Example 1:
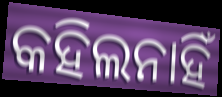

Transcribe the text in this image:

କହିଲନାହିଁ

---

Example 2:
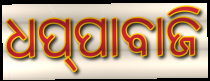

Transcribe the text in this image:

ଧପ୍‌ପାବାଜି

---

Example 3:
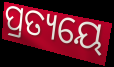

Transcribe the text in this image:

ପ୍ରତ୍ୟୟେ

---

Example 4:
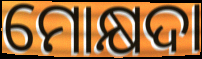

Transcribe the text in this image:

ମୋକ୍ଷଦା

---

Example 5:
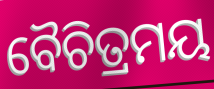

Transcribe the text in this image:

ବୈଚିତ୍ରମୟ